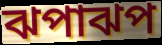
ঝপাঝপ